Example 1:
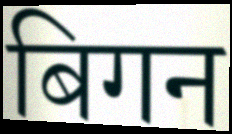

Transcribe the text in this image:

बिगन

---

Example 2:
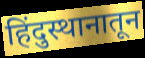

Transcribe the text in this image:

हिंदुस्थानातून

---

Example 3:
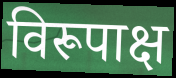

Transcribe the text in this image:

विरूपाक्ष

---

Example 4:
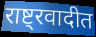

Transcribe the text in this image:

राष्ट्रवादीत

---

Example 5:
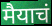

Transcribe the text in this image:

मैयाचं